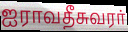
ஐராவதீசுவரர்